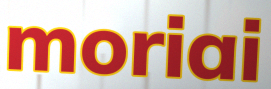
moriai